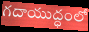
గదాయుద్ధంలో